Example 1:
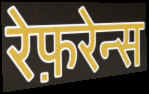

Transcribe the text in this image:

रेफ़रेन्स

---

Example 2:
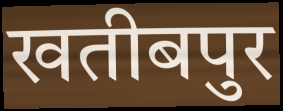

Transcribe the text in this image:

खतीबपुर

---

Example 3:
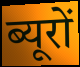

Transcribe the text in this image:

ब्यूरों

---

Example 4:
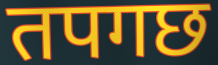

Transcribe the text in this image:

तपगछ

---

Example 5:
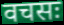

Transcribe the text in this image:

वचसः